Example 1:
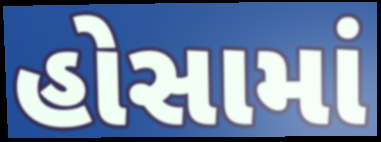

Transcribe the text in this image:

હોસામાં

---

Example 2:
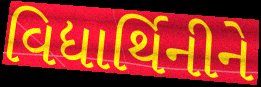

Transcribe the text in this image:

વિદ્યાર્થિનીને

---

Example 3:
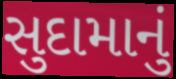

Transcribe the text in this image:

સુદામાનું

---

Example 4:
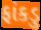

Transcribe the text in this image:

ફાંકડુ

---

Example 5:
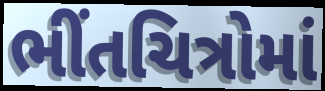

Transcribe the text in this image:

ભીંતચિત્રોમાં